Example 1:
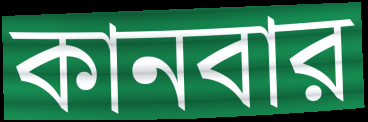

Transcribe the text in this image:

কানবার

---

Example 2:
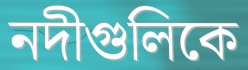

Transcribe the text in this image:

নদীগুলিকে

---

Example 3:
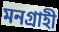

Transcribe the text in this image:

মনগ্রাহী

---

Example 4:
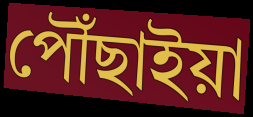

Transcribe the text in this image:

পৌঁছাইয়া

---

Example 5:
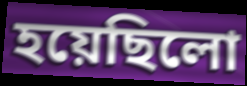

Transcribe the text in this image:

হয়েছিলো